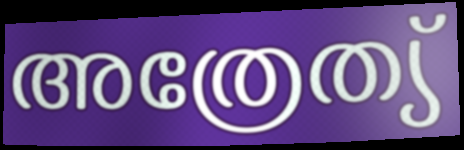
അത്രേത്യ്